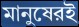
মানুষেরই